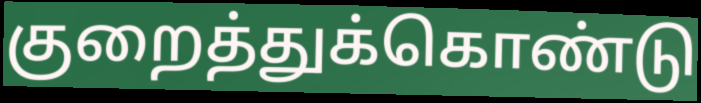
குறைத்துக்கொண்டு